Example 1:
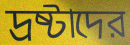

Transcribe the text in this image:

দ্রষ্টাদের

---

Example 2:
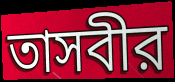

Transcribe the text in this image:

তাসবীর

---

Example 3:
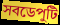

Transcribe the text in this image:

সবডেপুটি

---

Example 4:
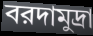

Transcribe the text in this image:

বরদামুদ্রা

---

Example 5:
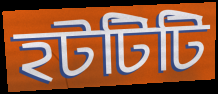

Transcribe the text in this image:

হটটিটি